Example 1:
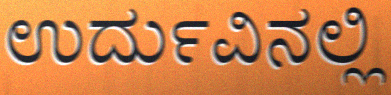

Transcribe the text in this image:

ಉರ್ದುವಿನಲ್ಲಿ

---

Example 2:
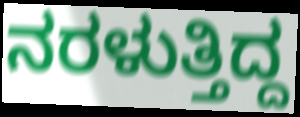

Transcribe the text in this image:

ನರಳುತ್ತಿದ್ದ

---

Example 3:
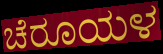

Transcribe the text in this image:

ಚೆರೂಯಳ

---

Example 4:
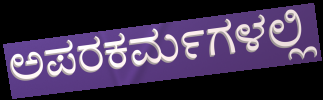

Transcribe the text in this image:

ಅಪರಕರ್ಮಗಳಲ್ಲಿ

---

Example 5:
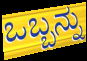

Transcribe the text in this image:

ಒಬ್ಬನ್ನು